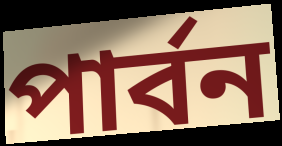
পাৰ্বন